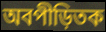
অবপীড়িতক